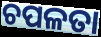
ଚପଳତା